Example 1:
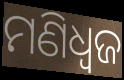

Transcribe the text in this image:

ମଣିଧ୍ୱଜ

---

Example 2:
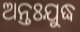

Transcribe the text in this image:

ଅନ୍ତଃଯୁଦ୍ଧ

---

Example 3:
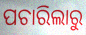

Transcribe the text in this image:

ପଚାରିଲାରୁ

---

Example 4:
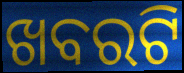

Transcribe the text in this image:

ଖବରଟି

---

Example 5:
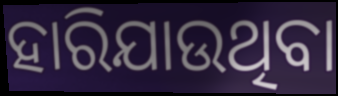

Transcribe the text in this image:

ହାରିଯାଉଥିବା